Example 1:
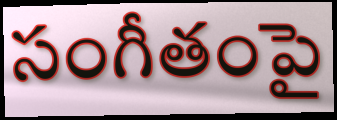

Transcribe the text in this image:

సంగీతంపై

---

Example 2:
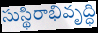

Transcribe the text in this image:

సుస్థిరాభివృద్ధి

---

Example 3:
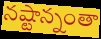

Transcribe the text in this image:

నష్టాన్నంతా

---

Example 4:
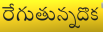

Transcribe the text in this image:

రేగుతున్నదొక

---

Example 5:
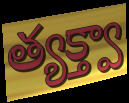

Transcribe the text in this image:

త్యక్త్వా